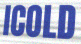
ICOLD